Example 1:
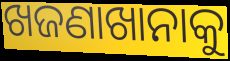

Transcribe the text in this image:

ଖଜଣାଖାନାକୁ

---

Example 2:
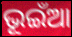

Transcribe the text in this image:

ଭୂଇଁଆ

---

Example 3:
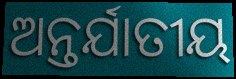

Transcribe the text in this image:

ଅନ୍ତର୍ଯାତୀୟ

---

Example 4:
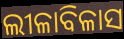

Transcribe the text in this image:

ଲୀଳାବିଳାସ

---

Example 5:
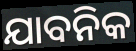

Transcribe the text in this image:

ଯାବନିକ